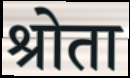
श्रोता